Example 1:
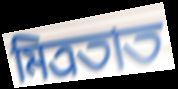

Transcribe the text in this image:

মিত্ৰতাত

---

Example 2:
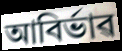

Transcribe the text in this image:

আবিৰ্ভাৱ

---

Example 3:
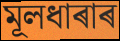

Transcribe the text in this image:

মূলধাৰাৰ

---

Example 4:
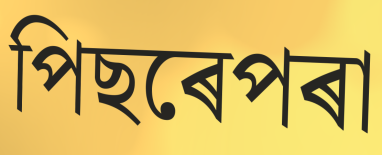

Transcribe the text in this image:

পিছৰেপৰা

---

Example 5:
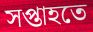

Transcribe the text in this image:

সপ্তাহতে